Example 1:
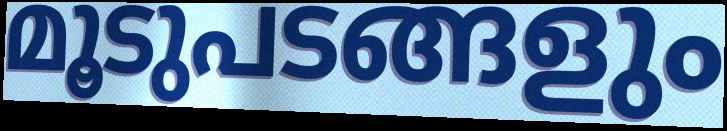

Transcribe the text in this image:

മൂടുപടങ്ങളും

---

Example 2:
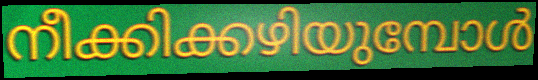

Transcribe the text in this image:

നീക്കിക്കഴിയുമ്പോൾ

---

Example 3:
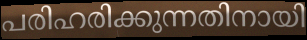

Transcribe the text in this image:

പരിഹരിക്കുന്നതിനായി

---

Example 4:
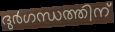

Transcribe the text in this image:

ദുർഗന്ധത്തിന്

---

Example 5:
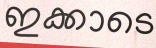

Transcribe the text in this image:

ഇക്കാടെ